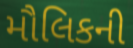
મૌલિકની